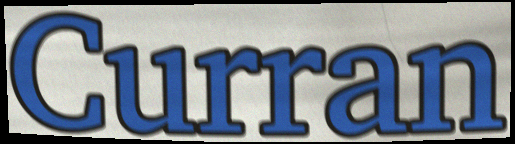
Curran